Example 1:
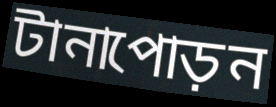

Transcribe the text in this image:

টানাপোড়ন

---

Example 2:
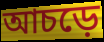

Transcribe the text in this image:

আচড়ে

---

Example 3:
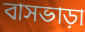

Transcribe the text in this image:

বাসভাড়া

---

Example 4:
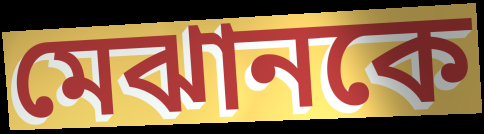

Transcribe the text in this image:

মেঝানকে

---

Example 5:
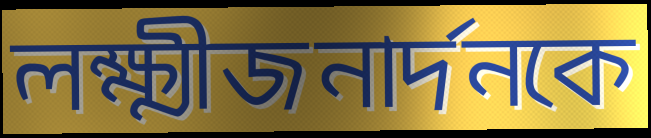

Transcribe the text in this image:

লক্ষ্মীজনার্দনকে